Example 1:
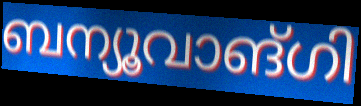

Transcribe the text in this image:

ബന്യൂവാങ്ഗി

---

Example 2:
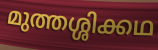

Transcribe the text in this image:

മുത്തശ്ശിക്കഥ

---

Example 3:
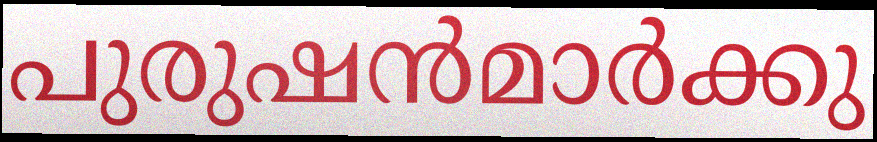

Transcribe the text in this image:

പുരുഷൻമാർക്കു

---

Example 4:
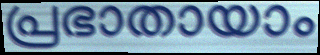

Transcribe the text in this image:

പ്രഭാതായാം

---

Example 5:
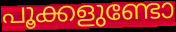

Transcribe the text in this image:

പൂക്കളുണ്ടോ